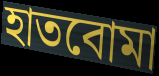
হাতবোমা